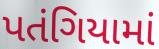
પતંગિયામાં